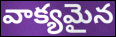
వాక్యమైన